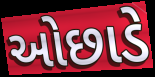
ઓછાડે